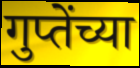
गुप्तेंच्या